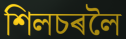
শিলচৰলৈ